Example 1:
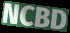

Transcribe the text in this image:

NCBD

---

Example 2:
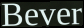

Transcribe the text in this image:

Bever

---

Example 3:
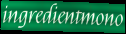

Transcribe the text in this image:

ingredientmono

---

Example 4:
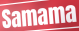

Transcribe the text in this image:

Samama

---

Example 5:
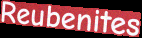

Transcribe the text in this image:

Reubenites